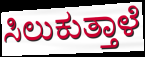
ಸಿಲುಕುತ್ತಾಳೆ